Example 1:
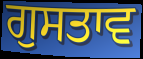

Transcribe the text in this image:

ਗੁਸਤਾਵ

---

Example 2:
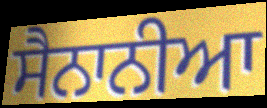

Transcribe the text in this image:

ਸੈਨਾਨੀਆ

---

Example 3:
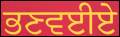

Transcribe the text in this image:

ਭਣਵਈਏ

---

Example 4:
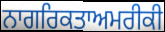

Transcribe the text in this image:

ਨਾਗਰਿਕਤਾਅਮਰੀਕੀ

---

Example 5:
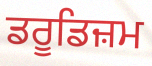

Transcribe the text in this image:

ਡਰੂਡਿਜ਼ਮ